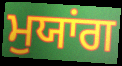
ਮੁਯਾਂਗ